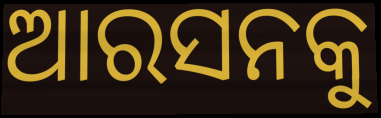
ଆରସନକୁ